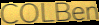
COLBen